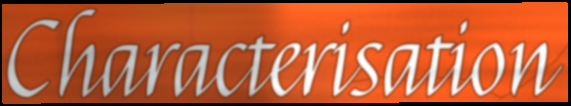
Characterisation